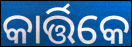
କାର୍ତ୍ତିକେ